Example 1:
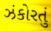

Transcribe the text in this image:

ઝંકોરતું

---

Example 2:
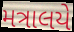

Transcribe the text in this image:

મત્રાલયે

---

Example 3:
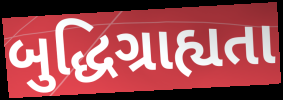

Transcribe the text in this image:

બુદ્ધિગ્રાહ્યતા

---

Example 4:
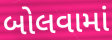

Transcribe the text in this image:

બોલવામાં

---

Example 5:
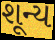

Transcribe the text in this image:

શૂન્ય